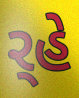
ર્‍હે